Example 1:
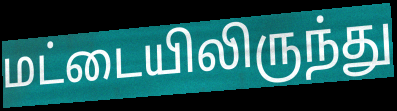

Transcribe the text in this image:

மட்டையிலிருந்து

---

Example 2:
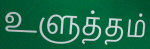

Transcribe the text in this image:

உளுத்தம்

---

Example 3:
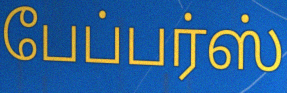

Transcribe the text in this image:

பேப்பர்ஸ்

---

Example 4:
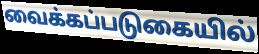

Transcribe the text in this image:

வைக்கப்படுகையில்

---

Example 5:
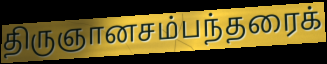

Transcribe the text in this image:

திருஞானசம்பந்தரைக்